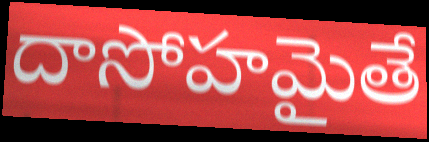
దాసోహమైతే